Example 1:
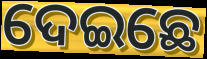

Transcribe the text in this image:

ଦେଇଛେ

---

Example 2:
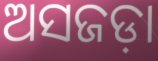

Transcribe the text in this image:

ଅସଜଡ଼ା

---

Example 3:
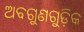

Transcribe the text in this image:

ଅବଗୁଣଗୁଡ଼ିକ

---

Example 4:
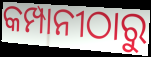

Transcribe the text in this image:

କମ୍ପାନୀଠାରୁ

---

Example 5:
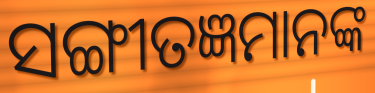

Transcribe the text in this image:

ସଙ୍ଗୀତଜ୍ଞମାନଙ୍କ